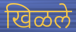
खिळले